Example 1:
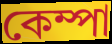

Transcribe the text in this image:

কেম্পা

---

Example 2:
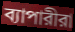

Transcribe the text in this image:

ব্যাপারীরা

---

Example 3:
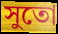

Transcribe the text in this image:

সুতো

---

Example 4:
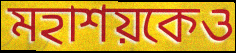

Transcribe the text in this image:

মহাশয়কেও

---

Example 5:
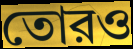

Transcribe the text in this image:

তোরও